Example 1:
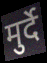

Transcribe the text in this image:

मुर्दे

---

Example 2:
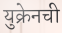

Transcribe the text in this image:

युक्रेनची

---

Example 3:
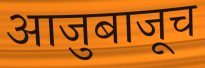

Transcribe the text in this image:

आजुबाजूच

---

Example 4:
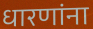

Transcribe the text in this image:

धारणांना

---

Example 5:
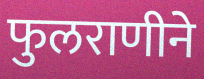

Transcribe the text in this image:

फुलराणीने